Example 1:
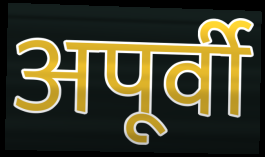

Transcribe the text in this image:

अपूर्वी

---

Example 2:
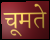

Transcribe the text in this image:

चूमते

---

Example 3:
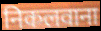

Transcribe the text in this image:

निकलवाना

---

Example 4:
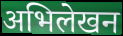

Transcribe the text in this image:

अभिलेखन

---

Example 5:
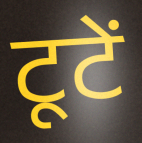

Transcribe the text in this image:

टूटें